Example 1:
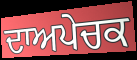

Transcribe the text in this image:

ਦਾਅਪੇਚਕ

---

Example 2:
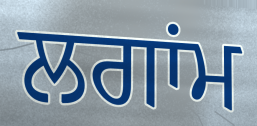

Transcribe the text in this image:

ਲਗਾਂਮ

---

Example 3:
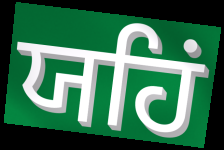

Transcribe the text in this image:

ਯਹਿਂ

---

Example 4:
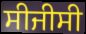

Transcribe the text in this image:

ਸੀਜੀਸੀ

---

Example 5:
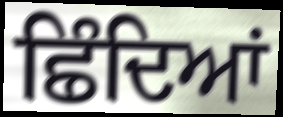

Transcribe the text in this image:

ਛਿੰਦਿਆਂ